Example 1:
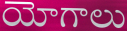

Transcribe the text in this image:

యోగాలు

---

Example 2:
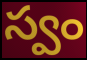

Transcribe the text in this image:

స్వం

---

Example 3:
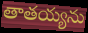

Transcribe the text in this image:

తాతయ్యను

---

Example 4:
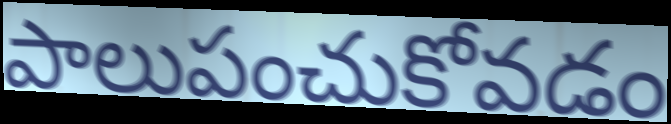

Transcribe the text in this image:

పాలుపంచుకోవడం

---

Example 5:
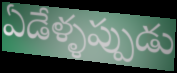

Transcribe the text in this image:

ఏడేళ్ళప్పుడు